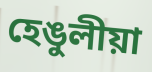
হেঙুলীয়া